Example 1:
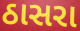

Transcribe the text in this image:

ઠાસરા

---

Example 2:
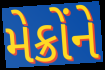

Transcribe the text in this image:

મેક્રોંને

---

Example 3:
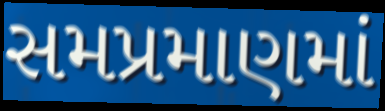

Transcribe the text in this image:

સમપ્રમાણમાં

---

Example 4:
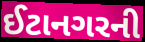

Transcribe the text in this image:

ઈટાનગરની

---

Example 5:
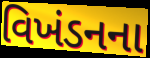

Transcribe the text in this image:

વિખંડનના